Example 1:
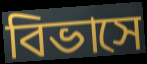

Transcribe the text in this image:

বিভাসে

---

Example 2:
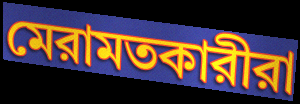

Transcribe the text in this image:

মেরামতকারীরা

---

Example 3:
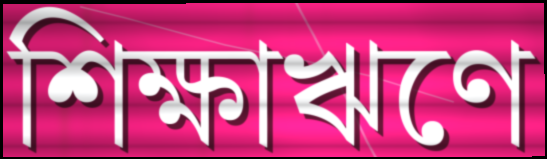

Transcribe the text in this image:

শিক্ষাঋণে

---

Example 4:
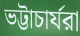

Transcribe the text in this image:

ভট্টাচার্যরা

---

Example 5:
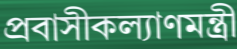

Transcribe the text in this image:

প্রবাসীকল্যাণমন্ত্রী